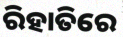
ରିହାତିରେ